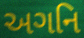
અગનિ